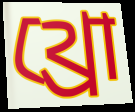
থ্রো